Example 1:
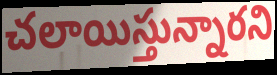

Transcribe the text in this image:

చలాయిస్తున్నారని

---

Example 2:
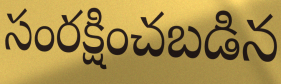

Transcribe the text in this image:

సంరక్షించబడిన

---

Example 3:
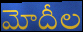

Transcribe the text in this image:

మోదీల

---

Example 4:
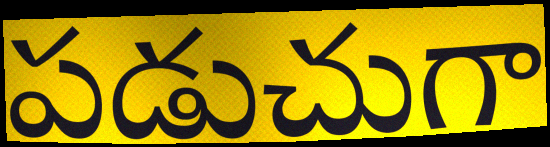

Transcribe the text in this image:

పడుచుగా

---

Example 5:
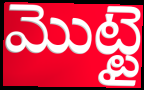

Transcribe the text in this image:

మొట్టై